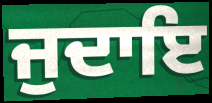
ਜੁਦਾਇ